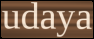
udaya